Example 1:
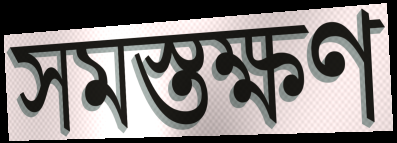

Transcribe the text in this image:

সমস্তক্ষণ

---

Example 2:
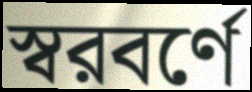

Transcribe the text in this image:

স্বরবর্ণে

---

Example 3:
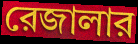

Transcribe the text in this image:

রেজালার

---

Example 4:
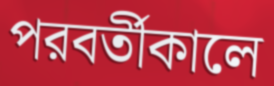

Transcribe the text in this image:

পরবর্তীকালে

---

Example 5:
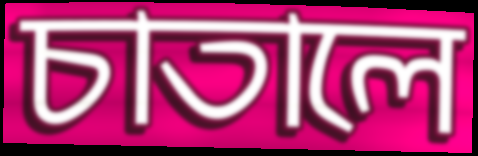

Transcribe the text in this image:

চাতালে